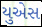
યુએસ